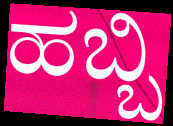
ಹಬ್ಬಿ